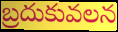
బ్రదుకువలన